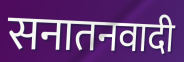
सनातनवादी